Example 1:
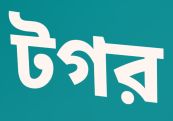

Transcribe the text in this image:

টগর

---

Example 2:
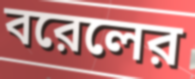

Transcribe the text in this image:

বরেলের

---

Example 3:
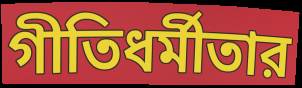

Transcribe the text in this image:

গীতিধর্মীতার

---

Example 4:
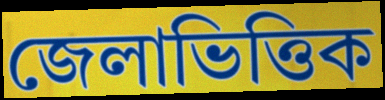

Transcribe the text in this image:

জেলাভিত্তিক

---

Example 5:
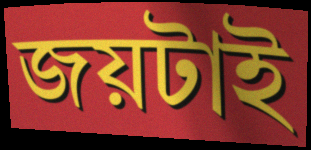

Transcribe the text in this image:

জয়টাই